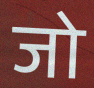
जो